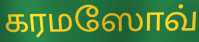
கரமஸோவ்